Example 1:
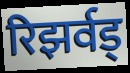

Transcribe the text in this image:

रिझर्वड्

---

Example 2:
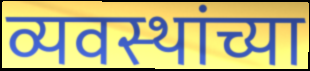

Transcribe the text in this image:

व्यवस्थांच्या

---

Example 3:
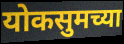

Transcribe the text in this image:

योकसुमच्या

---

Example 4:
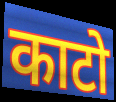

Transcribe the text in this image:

काटो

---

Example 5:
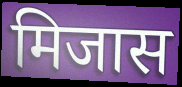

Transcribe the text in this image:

मिजास